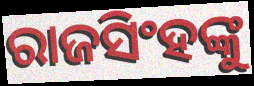
ରାଜସିଂହଙ୍କୁ